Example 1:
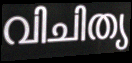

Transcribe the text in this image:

വിചിത്യ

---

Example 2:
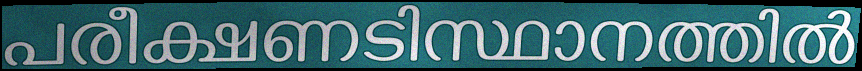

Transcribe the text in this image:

പരീക്ഷണടിസ്ഥാനത്തിൽ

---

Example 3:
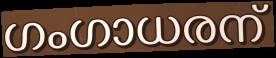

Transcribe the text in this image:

ഗംഗാധരന്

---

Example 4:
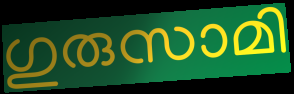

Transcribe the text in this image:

ഗുരുസാമി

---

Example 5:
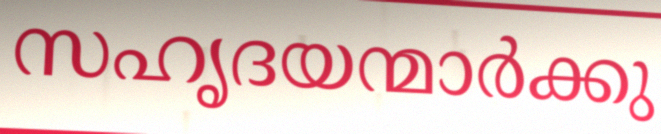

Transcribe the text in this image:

സഹൃദയന്മാർക്കു